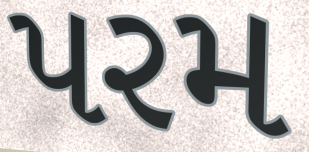
પરમ